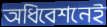
অধিবেশনেই